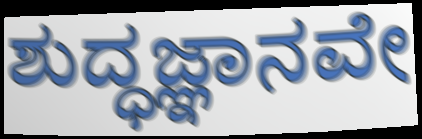
ಶುದ್ಧಜ್ಞಾನವೇ